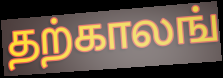
தற்காலங்